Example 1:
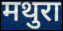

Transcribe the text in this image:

मथुरा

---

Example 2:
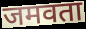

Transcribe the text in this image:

जमवता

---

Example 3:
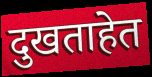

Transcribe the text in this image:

दुखताहेत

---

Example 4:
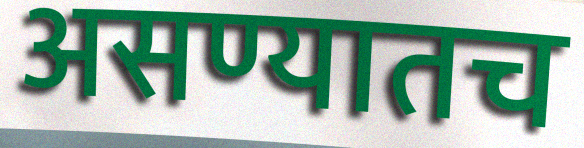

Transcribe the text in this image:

असण्यातच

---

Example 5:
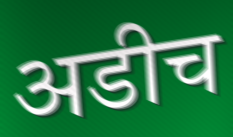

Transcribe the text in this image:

अडीच